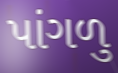
પાંગળુ